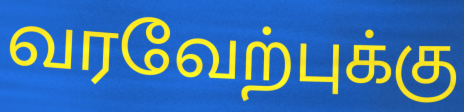
வரவேற்புக்கு